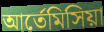
আর্তেমিসিয়া